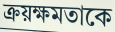
ক্রয়ক্ষমতাকে